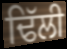
ਢਿੱਲੀ